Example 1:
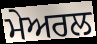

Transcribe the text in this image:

ਮੇਅਰਲ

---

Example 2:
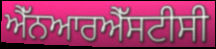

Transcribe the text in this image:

ਐੱਨਆਰਐੱਸਟੀਸੀ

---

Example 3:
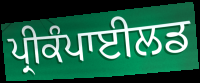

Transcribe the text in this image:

ਪ੍ਰੀਕੰਪਾਈਲਡ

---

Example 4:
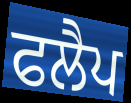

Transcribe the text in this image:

ਫਲੈਪ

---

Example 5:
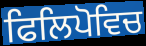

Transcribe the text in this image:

ਫਿਲਿਪੋਵਿਚ